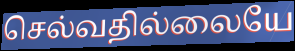
செல்வதில்லையே